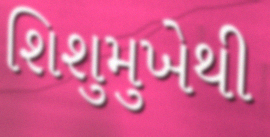
શિશુમુખેથી